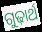
ଗୁଢ଼ାର୍ଥ